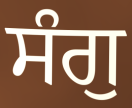
ਸੰਗੁ